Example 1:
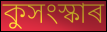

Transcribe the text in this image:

কুসংস্কাৰ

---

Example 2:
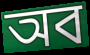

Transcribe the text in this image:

অব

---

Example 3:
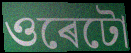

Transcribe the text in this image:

ওৰেটো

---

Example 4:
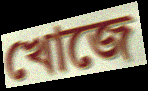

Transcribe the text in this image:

খোজে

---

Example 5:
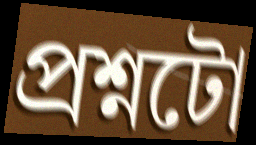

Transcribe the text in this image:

প্ৰশ্নটো